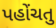
પહોંચતુ